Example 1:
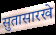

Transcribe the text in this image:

सुतासारखे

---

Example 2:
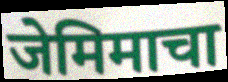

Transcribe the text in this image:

जेमिमाचा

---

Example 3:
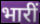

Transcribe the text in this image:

भारीं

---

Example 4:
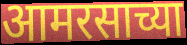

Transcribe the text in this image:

आमरसाच्या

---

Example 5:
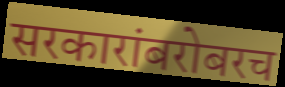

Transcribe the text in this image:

सरकारांबरोबरच